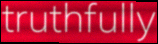
truthfully